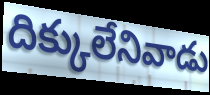
దిక్కులేనివాడు